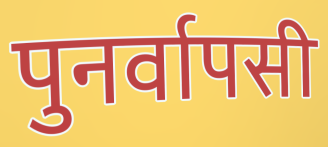
पुनर्वापसी